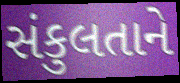
સંકુલતાને